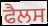
ਫੈਲਸ